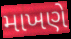
માખણે